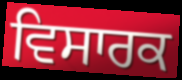
ਵਿਸਾਰਕ